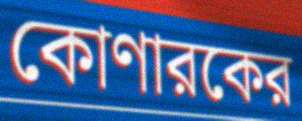
কোণারকের